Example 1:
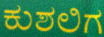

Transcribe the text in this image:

ಕುಶಲಿಗ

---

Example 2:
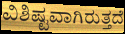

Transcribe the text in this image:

ವಿಶಿಷ್ಟವಾಗಿರುತ್ತದೆ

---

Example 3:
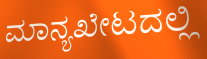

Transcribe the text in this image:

ಮಾನ್ಯಖೇಟದಲ್ಲಿ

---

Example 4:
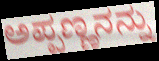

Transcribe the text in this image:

ಅಪ್ಪಣ್ಣನನ್ನು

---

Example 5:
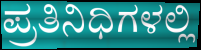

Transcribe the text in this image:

ಪ್ರತಿನಿಧಿಗಳಲ್ಲಿ